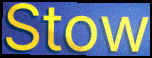
Stow